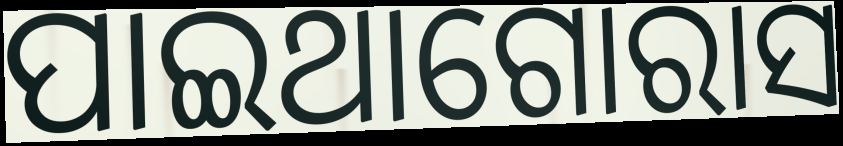
ପାଇଥାଗୋରାସ